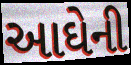
આઘેની